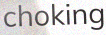
choking